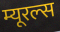
म्यूरल्स